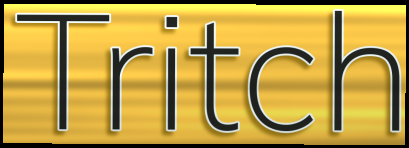
Tritch